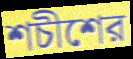
শচীশের